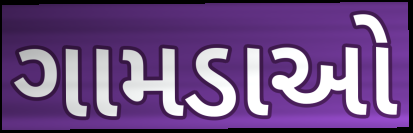
ગામડાઓ